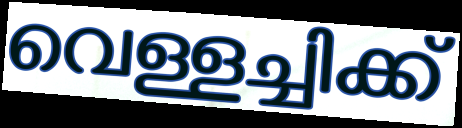
വെള്ളച്ചിക്ക്